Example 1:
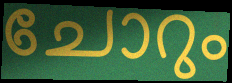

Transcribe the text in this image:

ചോറും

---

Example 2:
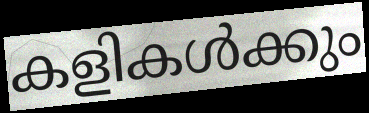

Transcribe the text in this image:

കളികൾക്കും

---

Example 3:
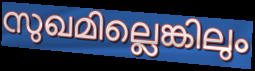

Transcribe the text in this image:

സുഖമില്ലെങ്കിലും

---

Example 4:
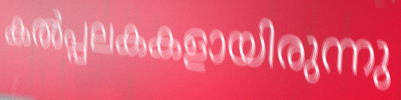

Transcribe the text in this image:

കൽപ്പലകകളായിരുന്നു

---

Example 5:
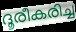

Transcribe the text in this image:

ദൂരീകരിച്ച